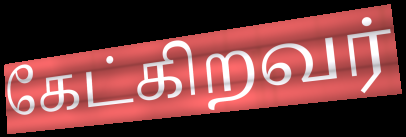
கேட்கிறவர்